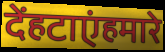
देंहटाएंहमारे